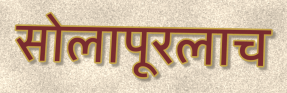
सोलापूरलाच